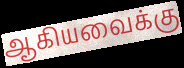
ஆகியவைக்கு